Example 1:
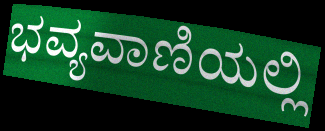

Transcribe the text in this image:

ಭವ್ಯವಾಣಿಯಲ್ಲಿ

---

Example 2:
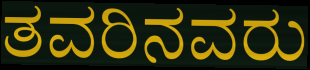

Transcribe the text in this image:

ತವರಿನವರು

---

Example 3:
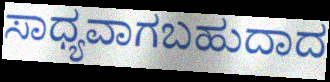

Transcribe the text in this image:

ಸಾಧ್ಯವಾಗಬಹುದಾದ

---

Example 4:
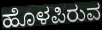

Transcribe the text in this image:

ಹೊಳಪಿರುವ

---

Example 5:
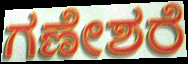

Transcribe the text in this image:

ಗಣೇಶರೆ